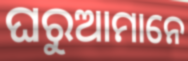
ଘରୁଆମାନେ